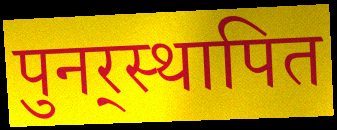
पुनर्स्थापित